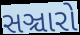
સઞ્ચારો